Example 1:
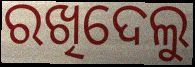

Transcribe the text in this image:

ରଖିଦେଲୁ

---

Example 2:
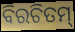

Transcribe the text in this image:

ବିରଚିତମ୍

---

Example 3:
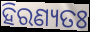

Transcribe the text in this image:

ହିରଣ୍ୟତଃ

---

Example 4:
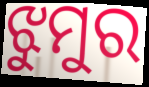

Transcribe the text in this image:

ଝୁମୁର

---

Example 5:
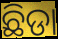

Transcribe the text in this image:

ଛିଡା